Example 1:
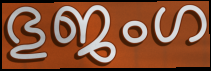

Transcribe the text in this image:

ഭുജംഗ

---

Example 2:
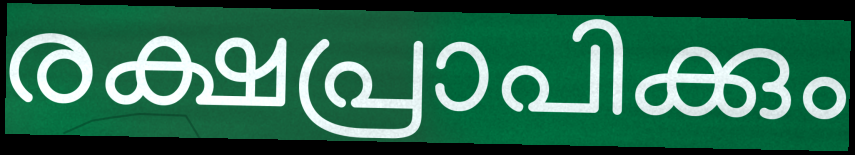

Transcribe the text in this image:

രക്ഷപ്രാപിക്കും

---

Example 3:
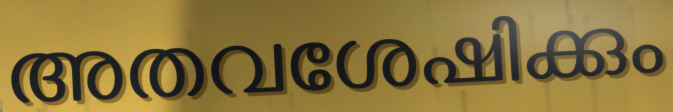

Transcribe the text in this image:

അതവശേഷിക്കും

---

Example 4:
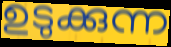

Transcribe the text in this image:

ഉടുക്കുന്ന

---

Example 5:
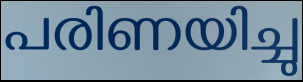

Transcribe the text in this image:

പരിണയിച്ചു